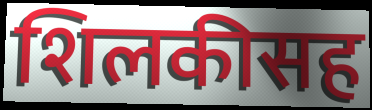
शिलकीसह